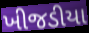
ખીજડીયા